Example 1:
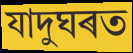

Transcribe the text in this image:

যাদুঘৰত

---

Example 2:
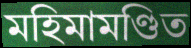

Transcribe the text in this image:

মহিমামণ্ডিত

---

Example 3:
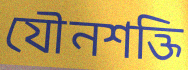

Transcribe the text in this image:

যৌনশক্তি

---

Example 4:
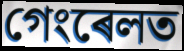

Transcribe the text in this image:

গেংৰেলত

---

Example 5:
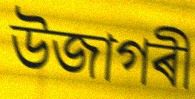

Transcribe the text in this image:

উজাগৰী